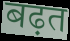
बढ़त